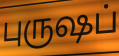
புருஷப்